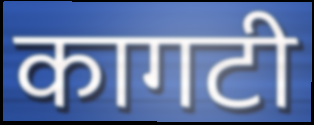
कागटी